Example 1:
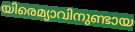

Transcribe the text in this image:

യിരെമ്യാവിനുണ്ടായ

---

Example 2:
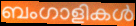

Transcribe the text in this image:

ബംഗാളികൾ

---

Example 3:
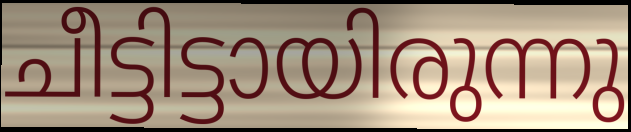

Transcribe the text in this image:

ചീട്ടിട്ടായിരുന്നു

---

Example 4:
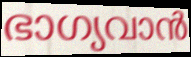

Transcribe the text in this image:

ഭാഗ്യവാൻ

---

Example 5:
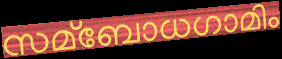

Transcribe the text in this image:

സമ്ബോധഗാമിം